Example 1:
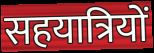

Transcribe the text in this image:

सहयात्रियों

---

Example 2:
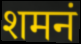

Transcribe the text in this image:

शमनं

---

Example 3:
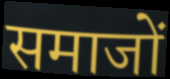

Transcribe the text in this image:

समाजों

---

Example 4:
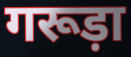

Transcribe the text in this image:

गरूड़ा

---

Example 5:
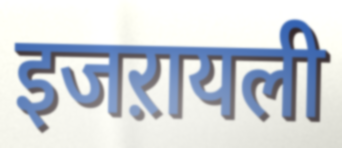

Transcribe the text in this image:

इजऱायली